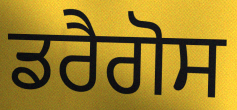
ਡਰੈਗੋਸ